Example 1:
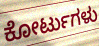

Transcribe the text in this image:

ಕೋರ್ಟುಗಳು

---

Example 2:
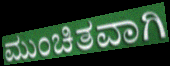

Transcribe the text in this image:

ಮುಂಚಿತವಾಗಿ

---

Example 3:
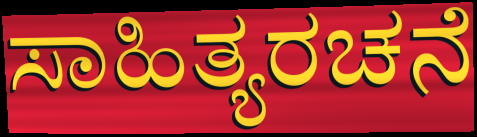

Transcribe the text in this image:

ಸಾಹಿತ್ಯರಚನೆ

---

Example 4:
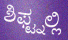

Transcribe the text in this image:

ಶಿಫ್ಟ್ನಲ್ಲಿ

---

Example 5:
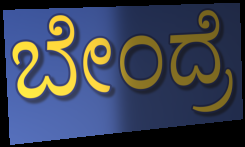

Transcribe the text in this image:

ಬೇಂದ್ರೆ